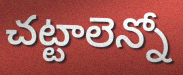
చట్టాలెన్నో